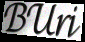
BUri